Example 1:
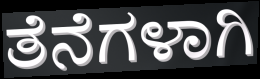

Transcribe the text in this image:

ತೆನೆಗಳಾಗಿ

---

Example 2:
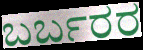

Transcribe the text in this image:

ಬರ್ಬರರ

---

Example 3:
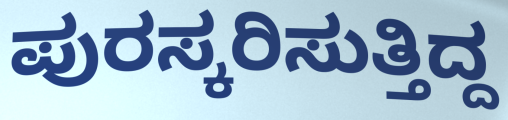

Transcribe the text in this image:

ಪುರಸ್ಕರಿಸುತ್ತಿದ್ದ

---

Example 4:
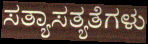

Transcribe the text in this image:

ಸತ್ಯಾಸತ್ಯತೆಗಳು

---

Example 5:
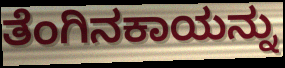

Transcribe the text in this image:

ತೆಂಗಿನಕಾಯನ್ನು